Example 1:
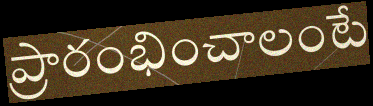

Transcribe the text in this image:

ప్రారంభించాలంటే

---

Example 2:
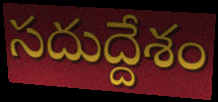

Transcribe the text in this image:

సదుద్దేశం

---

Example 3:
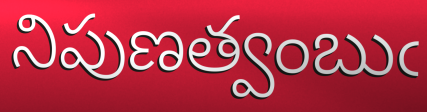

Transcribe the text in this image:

నిపుణత్వంబుఁ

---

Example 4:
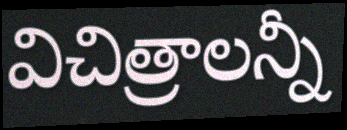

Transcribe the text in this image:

విచిత్రాలన్నీ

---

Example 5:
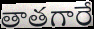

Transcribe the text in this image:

తాతగారే